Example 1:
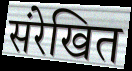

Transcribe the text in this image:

संरेखित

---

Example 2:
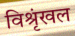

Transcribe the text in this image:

विश्रृंखल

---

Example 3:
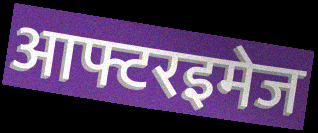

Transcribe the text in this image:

आफ्टरइमेज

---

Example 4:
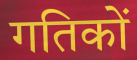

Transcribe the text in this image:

गतिकों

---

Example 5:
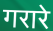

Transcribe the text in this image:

गरारे